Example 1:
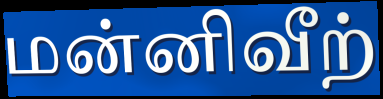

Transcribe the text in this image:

மன்னிவீற்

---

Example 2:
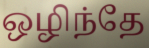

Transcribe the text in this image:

ஒழிந்தே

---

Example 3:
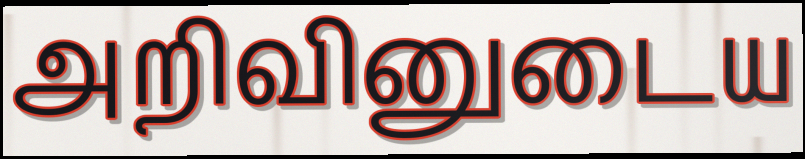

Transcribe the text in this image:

அறிவினுடைய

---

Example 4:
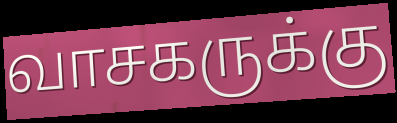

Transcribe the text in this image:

வாசகருக்கு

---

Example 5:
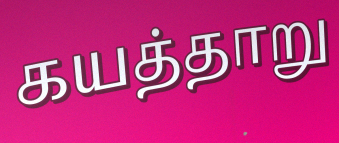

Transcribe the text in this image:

கயத்தாறு